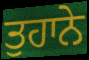
ਤੁਹਾਨੇ